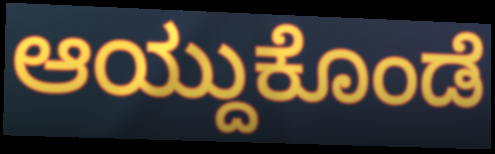
ಆಯ್ದುಕೊಂಡೆ